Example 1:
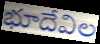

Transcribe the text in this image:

భూదేవిల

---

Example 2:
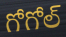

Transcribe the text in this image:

గోగోల్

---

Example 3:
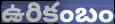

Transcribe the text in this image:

ఉరికంబం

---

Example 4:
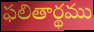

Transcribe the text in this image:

ఫలితార్థము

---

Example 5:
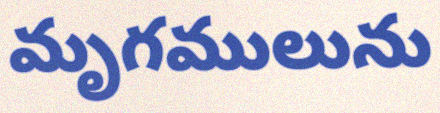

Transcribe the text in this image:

మృగములును